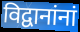
विद्वानांनां